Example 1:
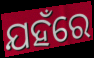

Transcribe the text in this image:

ଯହଁରେ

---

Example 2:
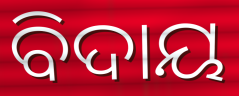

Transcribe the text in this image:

ବିଦାୟ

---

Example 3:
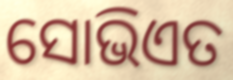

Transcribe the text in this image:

ସୋଭିଏତ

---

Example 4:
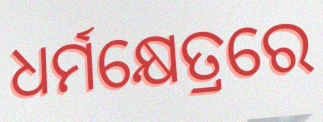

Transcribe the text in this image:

ଧର୍ମକ୍ଷେତ୍ରରେ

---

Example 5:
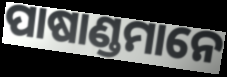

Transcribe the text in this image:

ପାଷାଣ୍ଡମାନେ